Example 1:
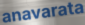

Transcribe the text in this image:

anavarata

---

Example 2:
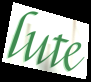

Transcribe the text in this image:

lute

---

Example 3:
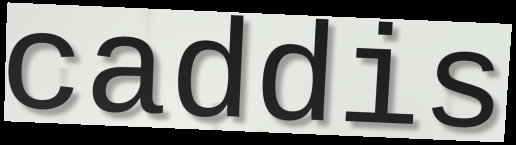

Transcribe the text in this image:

caddis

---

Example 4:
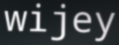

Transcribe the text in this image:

wijey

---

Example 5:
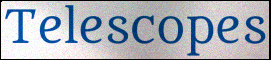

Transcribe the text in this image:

Telescopes